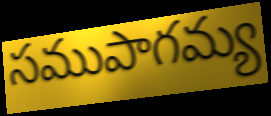
సముపాగమ్య